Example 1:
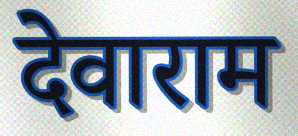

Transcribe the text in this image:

देवाराम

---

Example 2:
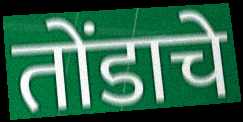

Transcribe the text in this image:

तोंडाचे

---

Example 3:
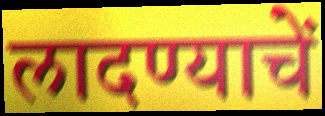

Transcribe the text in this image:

लादण्याचें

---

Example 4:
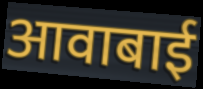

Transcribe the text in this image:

आवाबाई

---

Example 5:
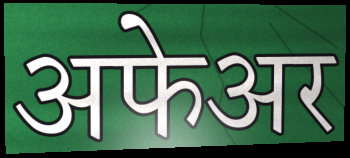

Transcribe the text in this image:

अफेअर